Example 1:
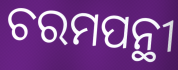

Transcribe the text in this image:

ଚରମପନ୍ଥୀ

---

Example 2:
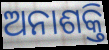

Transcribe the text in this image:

ଅନାଶକ୍ତି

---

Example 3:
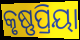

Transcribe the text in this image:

କୃଷ୍ଣପ୍ରିୟା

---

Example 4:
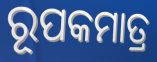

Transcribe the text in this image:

ରୂପକମାତ୍ର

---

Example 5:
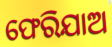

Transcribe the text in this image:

ଫେରିଯାଅ